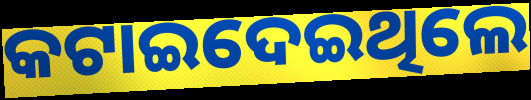
କଟାଇଦେଇଥିଲେ